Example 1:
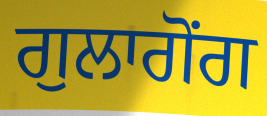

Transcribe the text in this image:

ਗੁਲਾਗੋਂਗ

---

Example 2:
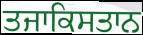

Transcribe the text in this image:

ਤਜਾਕਿਸਤਾਨ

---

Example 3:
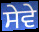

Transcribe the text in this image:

ਸੇਵੇ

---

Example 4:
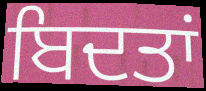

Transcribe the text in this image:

ਬਿਦਤਾਂ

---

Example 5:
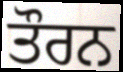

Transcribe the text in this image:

ਤੌਰਨ